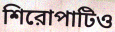
শিরোপাটিও